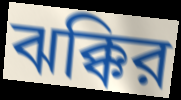
ঝক্কির